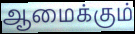
ஆமைக்கும்